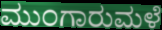
ಮುಂಗಾರುಮಳೆ